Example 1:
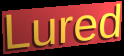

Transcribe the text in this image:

Lured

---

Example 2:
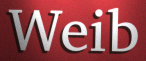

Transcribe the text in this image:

Weib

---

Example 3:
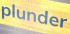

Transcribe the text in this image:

plunder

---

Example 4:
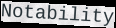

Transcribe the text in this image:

Notability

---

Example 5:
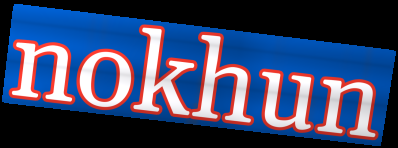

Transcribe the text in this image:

nokhun